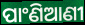
ପାଂଣିଆଣୀ